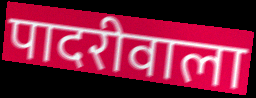
पादरीवाला